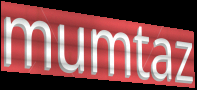
mumtaz